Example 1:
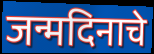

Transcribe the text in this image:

जन्मदिनाचे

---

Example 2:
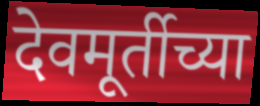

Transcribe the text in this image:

देवमूर्तीच्या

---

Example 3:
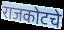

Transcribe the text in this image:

राजकोटचे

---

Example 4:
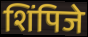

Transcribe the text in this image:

शिंपिजे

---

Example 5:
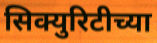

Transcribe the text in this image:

सिक्युरिटीच्या